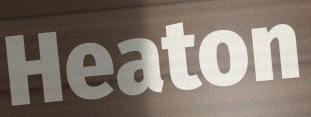
Heaton